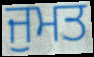
ਜੁਮਤ